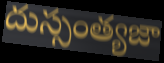
దుస్సంత్యజా